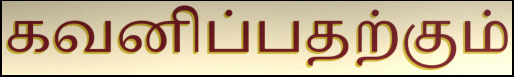
கவனிப்பதற்கும்